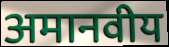
अमानवीय